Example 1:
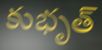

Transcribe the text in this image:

కుభృత్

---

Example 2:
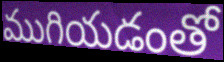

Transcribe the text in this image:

ముగియడంతో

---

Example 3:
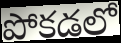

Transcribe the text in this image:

పోకడలో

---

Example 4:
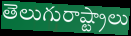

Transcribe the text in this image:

తెలుగురాష్ట్రాలు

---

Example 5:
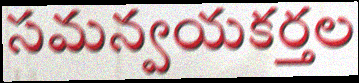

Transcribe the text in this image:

సమన్వయకర్తల